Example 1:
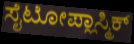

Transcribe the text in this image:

ಸೈಟೋಪ್ಲಾಸ್ಮಿಕ್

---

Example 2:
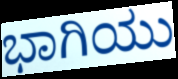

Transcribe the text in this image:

ಭಾಗಿಯು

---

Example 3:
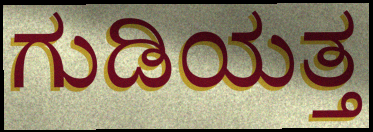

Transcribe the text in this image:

ಗುಡಿಯತ್ತ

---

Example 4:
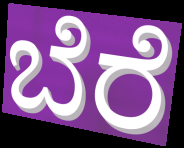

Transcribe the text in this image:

ಬೆರೆ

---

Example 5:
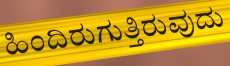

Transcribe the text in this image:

ಹಿಂದಿರುಗುತ್ತಿರುವುದು